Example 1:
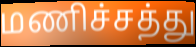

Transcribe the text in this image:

மணிச்சத்து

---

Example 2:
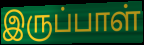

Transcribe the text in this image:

இருப்பாள்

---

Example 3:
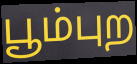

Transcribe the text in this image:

பூம்புற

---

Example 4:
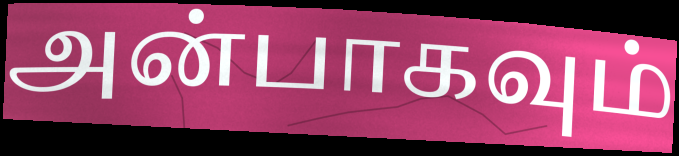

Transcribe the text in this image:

அன்பாகவும்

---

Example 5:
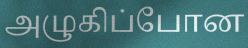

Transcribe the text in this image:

அழுகிப்போன